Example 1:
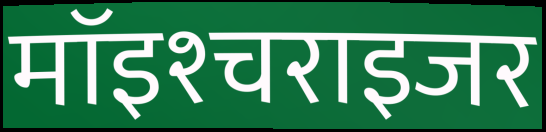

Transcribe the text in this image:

मॉइश्चराइजर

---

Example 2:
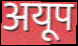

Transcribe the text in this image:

अयूप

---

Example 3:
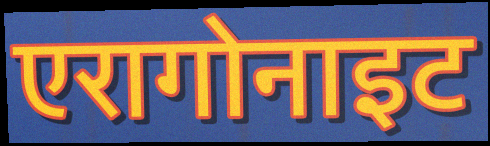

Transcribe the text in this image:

एरागोनाइट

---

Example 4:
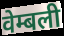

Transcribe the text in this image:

वेम्बली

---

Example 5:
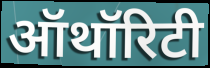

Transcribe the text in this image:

ऑथॉरिटी